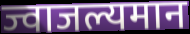
ज्वाजल्यमान